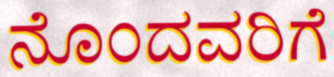
ನೊಂದವರಿಗೆ